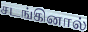
சடங்கினால்